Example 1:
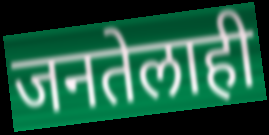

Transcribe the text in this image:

जनतेलाही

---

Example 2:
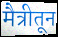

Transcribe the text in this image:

मैत्रीतून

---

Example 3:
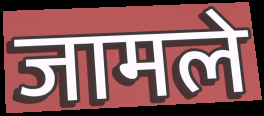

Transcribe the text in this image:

जामले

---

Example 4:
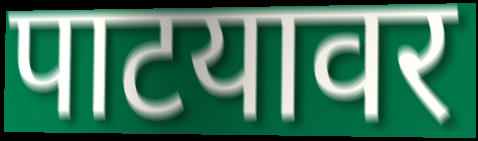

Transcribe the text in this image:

पाटयावर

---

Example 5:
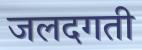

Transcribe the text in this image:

जलदगती